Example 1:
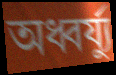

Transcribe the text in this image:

অধ্বর্য্যু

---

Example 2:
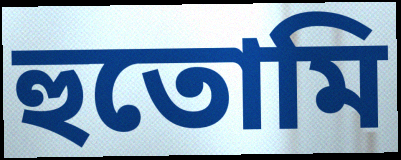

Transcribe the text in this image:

হুতোমি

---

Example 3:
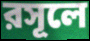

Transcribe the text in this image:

রসূলে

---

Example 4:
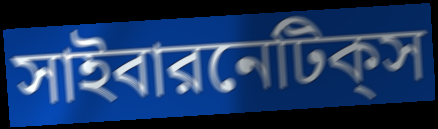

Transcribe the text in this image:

সাইবারনেটিক্‌স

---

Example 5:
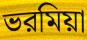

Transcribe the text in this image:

ভরমিয়া